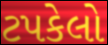
ટપકેલો